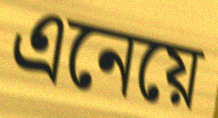
এনেয়ে